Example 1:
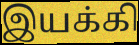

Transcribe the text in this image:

இயக்கி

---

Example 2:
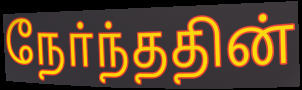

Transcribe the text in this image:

நேர்ந்ததின்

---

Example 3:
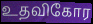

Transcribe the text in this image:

உதவிகோர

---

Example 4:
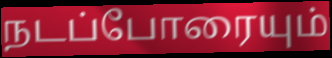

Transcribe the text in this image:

நடப்போரையும்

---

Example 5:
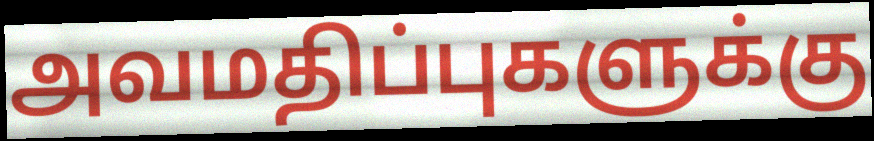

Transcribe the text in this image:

அவமதிப்புகளுக்கு